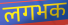
लगभक